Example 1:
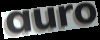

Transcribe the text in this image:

auro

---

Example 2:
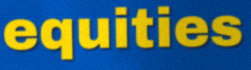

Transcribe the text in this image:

equities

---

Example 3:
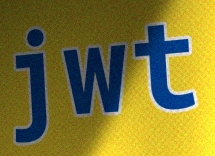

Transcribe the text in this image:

jwt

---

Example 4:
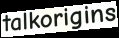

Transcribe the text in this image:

talkorigins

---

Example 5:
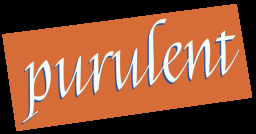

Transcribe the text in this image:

purulent